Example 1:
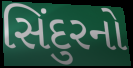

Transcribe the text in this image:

સિંદુરનો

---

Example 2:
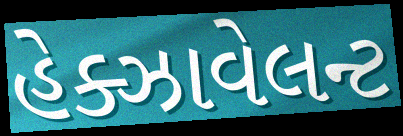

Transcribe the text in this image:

હેક્ઝાવેલન્ટ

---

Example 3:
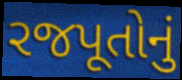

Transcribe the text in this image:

રજપૂતોનું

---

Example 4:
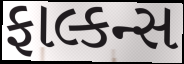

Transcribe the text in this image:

ફાલ્કન્સ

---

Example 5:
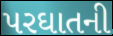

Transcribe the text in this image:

પરઘાતની